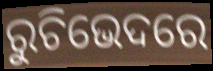
ରୁଚିଭେଦରେ